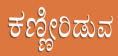
ಕಣ್ಣೀರಿಡುವ